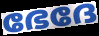
ഭേദേ